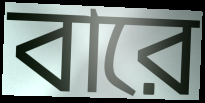
বারে